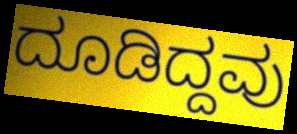
ದೂಡಿದ್ದವು